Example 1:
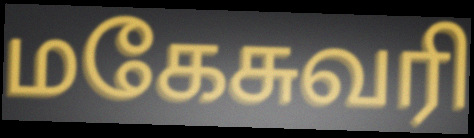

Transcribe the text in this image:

மகேசுவரி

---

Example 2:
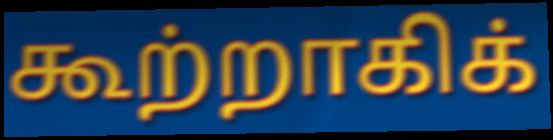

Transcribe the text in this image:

கூற்றாகிக்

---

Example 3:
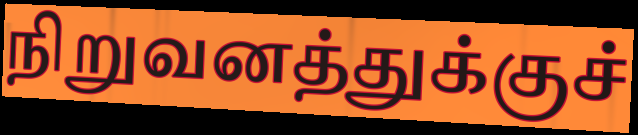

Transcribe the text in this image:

நிறுவனத்துக்குச்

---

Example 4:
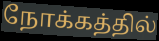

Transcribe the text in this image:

நோக்கத்தில்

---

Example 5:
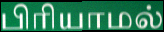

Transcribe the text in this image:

பிரியாமல்